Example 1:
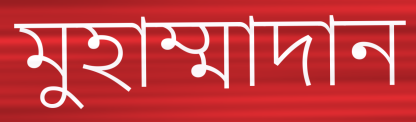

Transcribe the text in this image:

মুহাম্মাদান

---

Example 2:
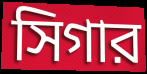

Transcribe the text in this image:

সিগার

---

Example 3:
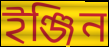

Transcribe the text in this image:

ইঞ্জিন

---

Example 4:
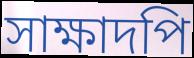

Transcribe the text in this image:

সাক্ষাদপি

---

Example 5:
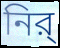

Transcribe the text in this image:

নির্